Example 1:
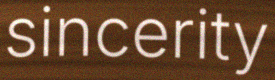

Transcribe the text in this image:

sincerity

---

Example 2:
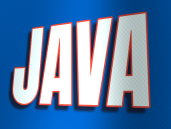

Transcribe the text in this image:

JAVA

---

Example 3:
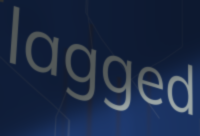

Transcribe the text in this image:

lagged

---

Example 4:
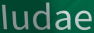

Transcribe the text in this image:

Iudae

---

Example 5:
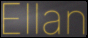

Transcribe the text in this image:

Ellan